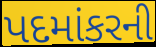
પદમાંકરની